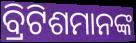
ବ୍ରିଟିଶମାନଙ୍କ